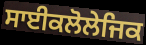
ਸਾਈਕਲੋਲੇਜਿਕ